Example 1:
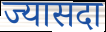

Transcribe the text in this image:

ज्यासदा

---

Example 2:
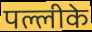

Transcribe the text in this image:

पल्लीके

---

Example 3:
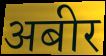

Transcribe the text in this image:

अबीर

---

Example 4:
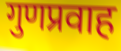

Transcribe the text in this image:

गुणप्रवाह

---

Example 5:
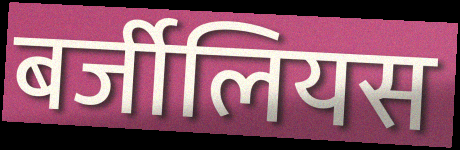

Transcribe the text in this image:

बर्जीलियस